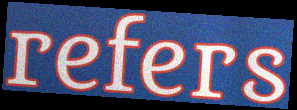
refers